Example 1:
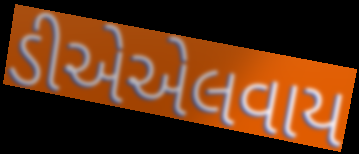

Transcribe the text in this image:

ડીએએલવાય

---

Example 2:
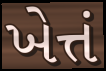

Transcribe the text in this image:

ખેત્તં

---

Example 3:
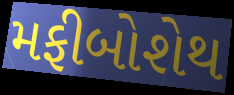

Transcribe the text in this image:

મફીબોશેથ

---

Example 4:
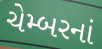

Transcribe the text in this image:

ચેમ્બરનાં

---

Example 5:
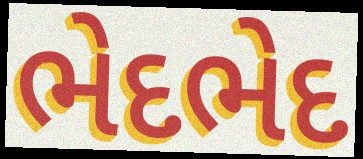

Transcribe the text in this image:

ભેદભેદ